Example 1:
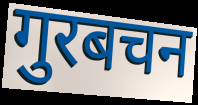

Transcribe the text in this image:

गुरबचन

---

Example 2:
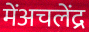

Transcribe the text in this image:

मेंअचलेंद्र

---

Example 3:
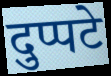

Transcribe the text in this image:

दुप्पटे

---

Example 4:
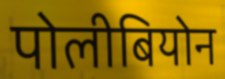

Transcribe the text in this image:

पोलीबियोन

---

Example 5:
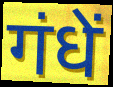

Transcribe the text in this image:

गंधें